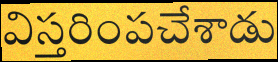
విస్తరింపచేశాడు